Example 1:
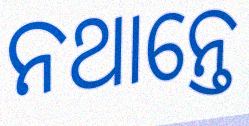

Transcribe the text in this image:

ନଥାନ୍ତେ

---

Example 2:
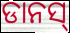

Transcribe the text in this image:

ଡାନସ୍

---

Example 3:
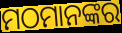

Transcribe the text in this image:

ମଠମାନଙ୍କର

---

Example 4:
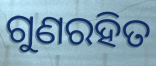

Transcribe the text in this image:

ଗୁଣରହିତ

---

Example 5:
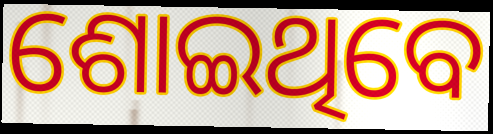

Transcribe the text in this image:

ଶୋଇଥିବେ